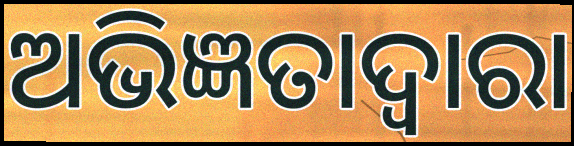
ଅଭିଜ୍ଞତାଦ୍ଵାରା